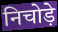
निचोड़े